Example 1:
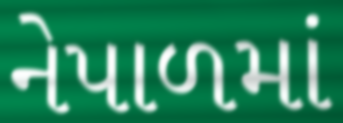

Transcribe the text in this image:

નેપાળમાં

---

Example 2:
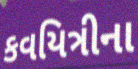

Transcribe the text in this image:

કવયિત્રીના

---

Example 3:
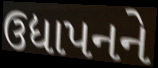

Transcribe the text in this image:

ઉદ્યાપનને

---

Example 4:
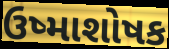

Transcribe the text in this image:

ઉષ્માશોષક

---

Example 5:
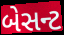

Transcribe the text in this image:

બેસન્ટ